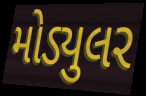
મોડ્યુલર